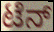
ಟೆನ್